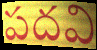
పదవి